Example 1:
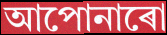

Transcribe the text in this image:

আপোনাৰো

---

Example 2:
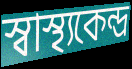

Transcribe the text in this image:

স্বাস্থ্যকেন্দ্ৰ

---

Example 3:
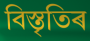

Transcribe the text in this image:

বিস্তৃতিৰ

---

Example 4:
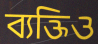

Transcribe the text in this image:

ব্যক্তিও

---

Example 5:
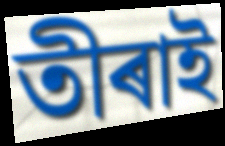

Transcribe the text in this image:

তীৰাই